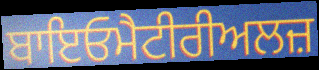
ਬਾਇਓਮੈਟੀਰੀਅਲਜ਼